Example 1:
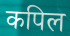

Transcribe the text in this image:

कपिल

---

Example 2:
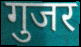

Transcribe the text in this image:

गुजर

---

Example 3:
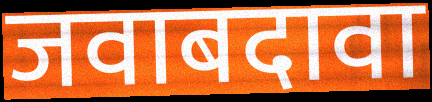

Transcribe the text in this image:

जवाबदावा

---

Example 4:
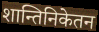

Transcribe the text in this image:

शान्तिनिकेतन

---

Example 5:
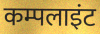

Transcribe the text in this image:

कम्पलाइंट